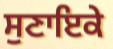
ਸੁਣਾਇਕੇ